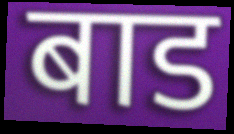
बाड